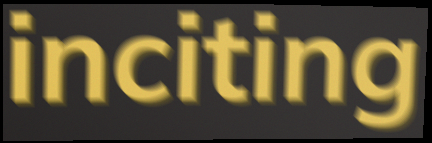
inciting